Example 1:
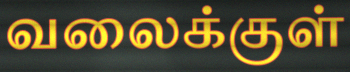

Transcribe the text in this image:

வலைக்குள்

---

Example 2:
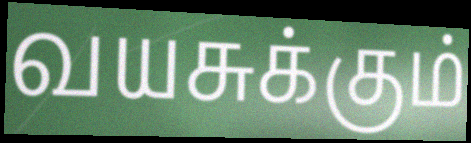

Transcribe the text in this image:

வயசுக்கும்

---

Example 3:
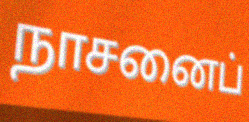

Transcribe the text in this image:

நாசனைப்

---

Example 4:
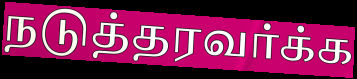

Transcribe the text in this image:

நடுத்தரவர்க்க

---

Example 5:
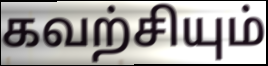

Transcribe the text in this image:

கவற்சியும்